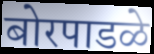
बोरपाडळे